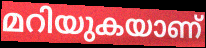
മറിയുകയാണ്